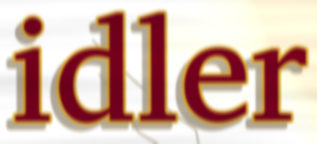
idler